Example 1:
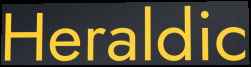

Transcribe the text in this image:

Heraldic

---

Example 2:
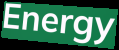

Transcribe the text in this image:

Energy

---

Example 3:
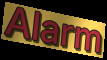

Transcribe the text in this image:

Alarm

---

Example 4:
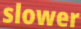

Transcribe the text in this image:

slower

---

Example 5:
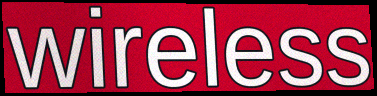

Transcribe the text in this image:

wireless